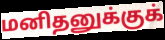
மனிதனுக்குக்